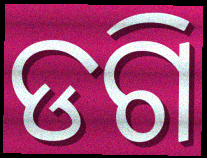
ଡଗି